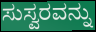
ಸುಸ್ವರವನ್ನು